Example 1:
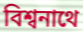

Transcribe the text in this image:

বিশ্বনাথে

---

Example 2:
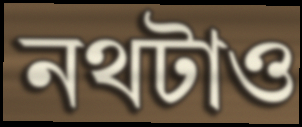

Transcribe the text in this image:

নথটাও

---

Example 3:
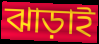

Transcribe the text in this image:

ঝাড়াই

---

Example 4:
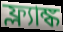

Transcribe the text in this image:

ফ্ল্যাঙ্ক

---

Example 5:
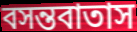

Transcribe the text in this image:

বসন্তবাতাস